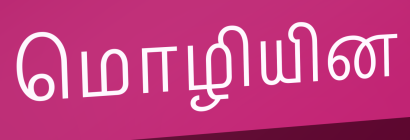
மொழியின